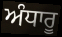
ਅੰਧਾਰੂ